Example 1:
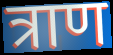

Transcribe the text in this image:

त्राण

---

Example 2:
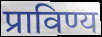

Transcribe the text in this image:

प्राविण्य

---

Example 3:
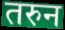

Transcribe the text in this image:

तरुन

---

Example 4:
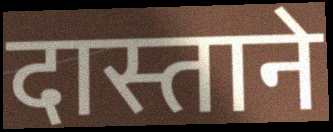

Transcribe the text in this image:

दास्ताने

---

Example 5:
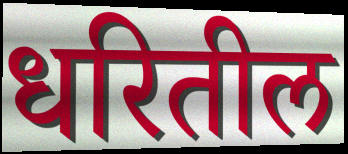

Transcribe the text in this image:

धरितील